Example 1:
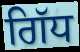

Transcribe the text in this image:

ਗਿੱਧ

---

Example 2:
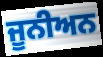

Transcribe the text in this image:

ਜੂਨੀਅਨ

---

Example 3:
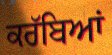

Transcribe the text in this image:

ਕਰੱਬਿਆਂ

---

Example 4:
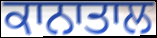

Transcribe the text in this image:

ਕਾਨਾਤਾਲ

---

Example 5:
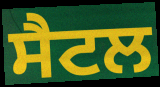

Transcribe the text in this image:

ਸੈਟਲ